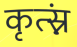
कृत्स्नं